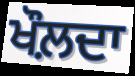
ਖੌਲ਼ਦਾ